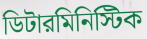
ডিটারমিনিস্টিক